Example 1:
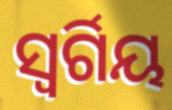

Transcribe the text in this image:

ସ୍ୱର୍ଗିୟ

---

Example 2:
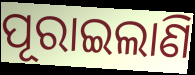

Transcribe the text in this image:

ପୂରାଇଲାଣି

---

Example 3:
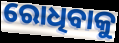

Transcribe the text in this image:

ରୋଧିବାକୁ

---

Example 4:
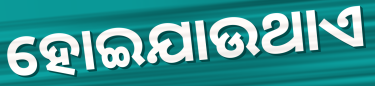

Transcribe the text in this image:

ହୋଇଯାଉଥାଏ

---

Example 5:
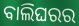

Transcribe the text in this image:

ବାଲିଘରର